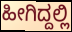
ಹೀಗಿದ್ದಲ್ಲಿ